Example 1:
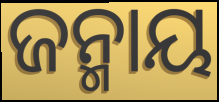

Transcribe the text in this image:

ଜନ୍ମାୟ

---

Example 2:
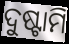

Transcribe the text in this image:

ଦୁଷ୍ଟାମି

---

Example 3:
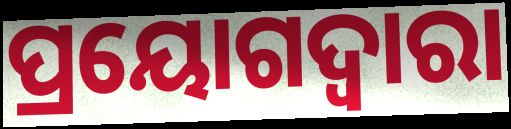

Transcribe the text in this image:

ପ୍ରୟୋଗଦ୍ଵାରା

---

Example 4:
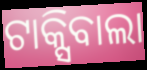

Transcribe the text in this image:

ଟାକ୍ସିବାଲା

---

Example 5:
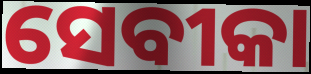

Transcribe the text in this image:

ସେବୀକା